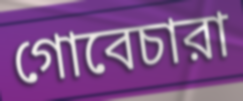
গোবেচারা